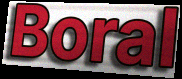
Boral